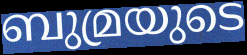
ബുമ്രയുടെ